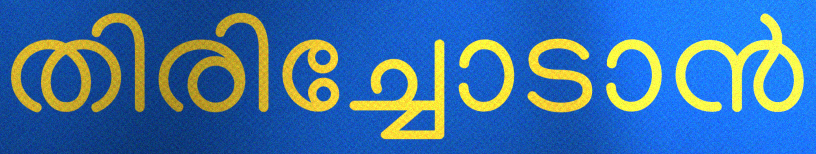
തിരിച്ചോടാൻ